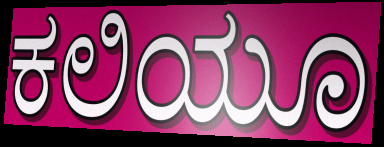
ಕಲಿಯೂ